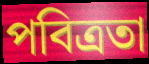
পবিত্রতা